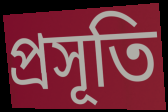
প্ৰসূতি